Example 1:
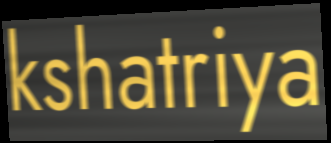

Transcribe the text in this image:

kshatriya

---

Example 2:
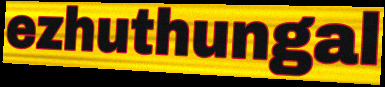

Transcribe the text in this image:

ezhuthungal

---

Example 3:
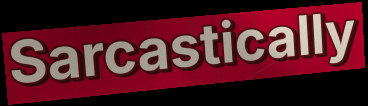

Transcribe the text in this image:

Sarcastically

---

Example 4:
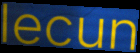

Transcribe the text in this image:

lecun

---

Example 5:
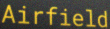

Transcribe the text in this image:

Airfield